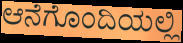
ಆನೆಗೊಂದಿಯಲ್ಲಿ